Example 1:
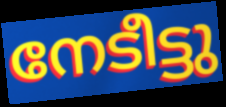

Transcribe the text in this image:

നേടീട്ടു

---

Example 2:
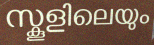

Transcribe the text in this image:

സ്കൂളിലെയും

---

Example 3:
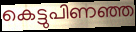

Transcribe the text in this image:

കെട്ടുപിണഞ്ഞ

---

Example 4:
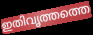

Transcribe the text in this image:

ഇതിവൃത്തത്തെ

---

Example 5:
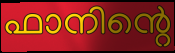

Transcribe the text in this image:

ഫാനിന്റെ